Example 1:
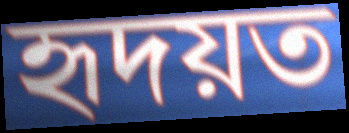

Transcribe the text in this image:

হৃদয়ত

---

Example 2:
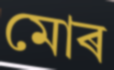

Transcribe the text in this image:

মোৰ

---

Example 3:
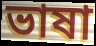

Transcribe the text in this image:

ভাষা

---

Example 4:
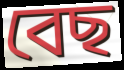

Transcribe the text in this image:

বেছ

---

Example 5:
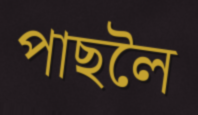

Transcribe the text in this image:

পাছলৈ